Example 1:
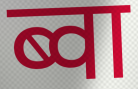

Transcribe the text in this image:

ब्वा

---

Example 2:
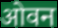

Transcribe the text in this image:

ओवन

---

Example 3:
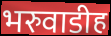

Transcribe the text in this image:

भरुवाडीह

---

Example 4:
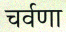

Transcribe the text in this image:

चर्वणा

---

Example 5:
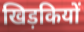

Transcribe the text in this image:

खिड़कियों